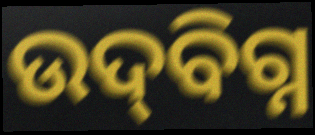
ଉଦ୍‌ବିଗ୍ନ